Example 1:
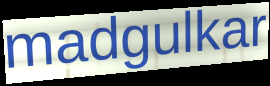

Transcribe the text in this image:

madgulkar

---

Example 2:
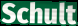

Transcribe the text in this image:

Schult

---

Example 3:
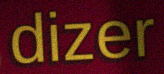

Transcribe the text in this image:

dizer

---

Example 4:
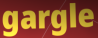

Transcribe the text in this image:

gargle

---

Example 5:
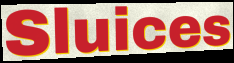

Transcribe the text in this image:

Sluices